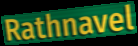
Rathnavel